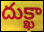
దుక్ఖా